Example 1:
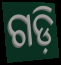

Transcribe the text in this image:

ଗଡ଼ି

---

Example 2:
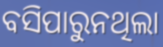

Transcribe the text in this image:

ବସିପାରୁନଥିଲା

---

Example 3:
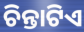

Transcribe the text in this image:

ଚିନ୍ତାଟିଏ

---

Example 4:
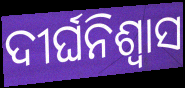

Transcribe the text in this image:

ଦୀର୍ଘନିଶ୍ବାସ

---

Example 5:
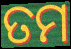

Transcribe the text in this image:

ତମ